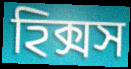
হিক্সস